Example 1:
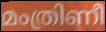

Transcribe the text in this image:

മംത്രിണീ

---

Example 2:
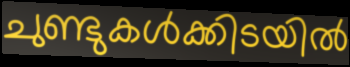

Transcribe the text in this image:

ചുണ്ടുകൾക്കിടയിൽ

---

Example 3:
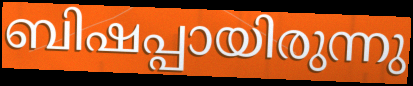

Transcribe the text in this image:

ബിഷപ്പായിരുന്നു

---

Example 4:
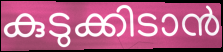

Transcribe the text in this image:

കുടുക്കിടാൻ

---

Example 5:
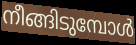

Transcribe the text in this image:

നീങ്ങിടുമ്പോൾ